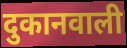
दुकानवाली